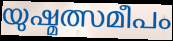
യുഷ്മത്സമീപം